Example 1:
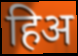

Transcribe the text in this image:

हिअ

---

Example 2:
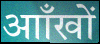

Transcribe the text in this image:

आाँखों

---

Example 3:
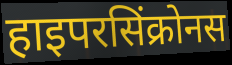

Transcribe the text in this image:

हाइपरसिंक्रोनस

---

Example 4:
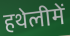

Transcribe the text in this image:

हथेलीमें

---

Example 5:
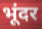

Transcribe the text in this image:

भूंदर